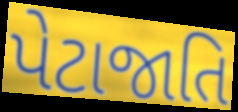
પેટાજાતિ